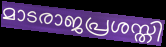
മാടരാജപ്രശസ്തി